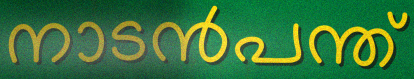
നാടൻപന്ത്